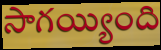
సాగయ్యింది